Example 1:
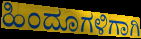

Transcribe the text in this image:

ಹಿಂದೂಗಳಿಗಾಗಿ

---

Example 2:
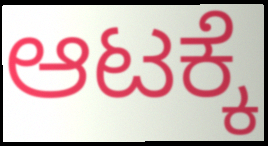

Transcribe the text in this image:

ಆಟಕ್ಕೆ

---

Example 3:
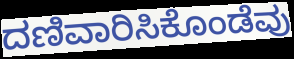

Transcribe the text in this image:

ದಣಿವಾರಿಸಿಕೊಂಡೆವು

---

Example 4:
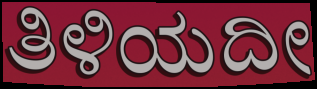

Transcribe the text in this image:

ತಿಳಿಯದೀ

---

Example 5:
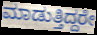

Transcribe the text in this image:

ಮಾಡುತ್ತಿದ್ದರೇ